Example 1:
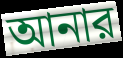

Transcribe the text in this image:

আনার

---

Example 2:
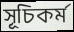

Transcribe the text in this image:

সূচিকর্ম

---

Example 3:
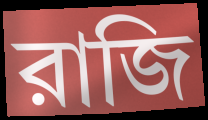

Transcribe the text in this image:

রাজি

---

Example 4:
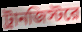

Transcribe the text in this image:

ট্রানজিস্টরে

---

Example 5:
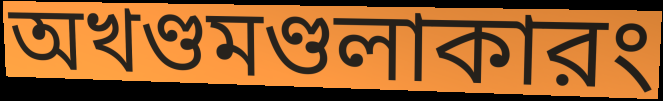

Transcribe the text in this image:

অখণ্ডমণ্ডলাকারং